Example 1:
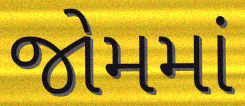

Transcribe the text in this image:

જોમમાં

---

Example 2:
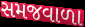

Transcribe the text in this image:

સમજવાળા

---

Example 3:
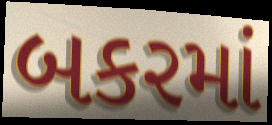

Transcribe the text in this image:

બકરમાં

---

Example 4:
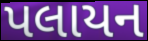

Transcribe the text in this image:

પલાયન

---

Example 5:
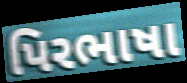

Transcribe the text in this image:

પિરભાષા